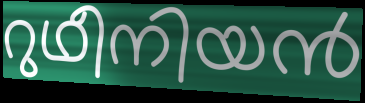
റുഥീനിയൻ